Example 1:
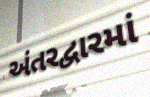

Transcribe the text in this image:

અંતરદ્વારમાં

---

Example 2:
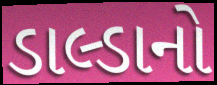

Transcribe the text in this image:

ડાલ્ડાનો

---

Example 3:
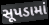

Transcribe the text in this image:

સૂપડામાં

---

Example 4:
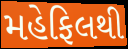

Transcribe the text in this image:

મહેફિલથી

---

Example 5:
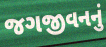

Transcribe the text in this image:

જગજીવનનું